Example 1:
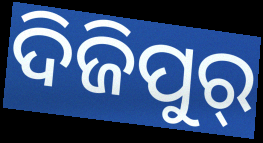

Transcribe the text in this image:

ଦିଜିପୁର୍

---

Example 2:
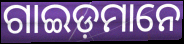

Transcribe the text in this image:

ଗାଇଡ଼ମାନେ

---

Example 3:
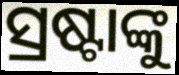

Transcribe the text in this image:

ସ୍ରଷ୍ଟାଙ୍କୁ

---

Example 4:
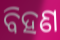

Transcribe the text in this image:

ବିହଣ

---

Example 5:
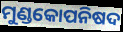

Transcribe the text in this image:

ମୁଣ୍ଡକୋପନିଷଦ